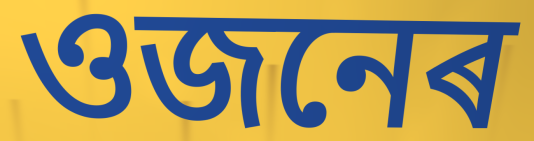
ওজনেৰ